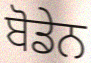
ਬੋਡੇਨ